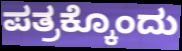
ಪತ್ರಕ್ಕೊಂದು